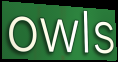
owls